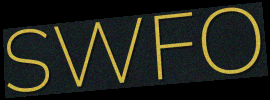
SWFO